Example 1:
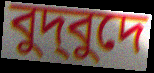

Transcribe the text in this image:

বুদ্‌বুদে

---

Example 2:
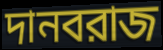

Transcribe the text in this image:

দানবরাজ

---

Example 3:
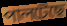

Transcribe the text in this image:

পালটেছে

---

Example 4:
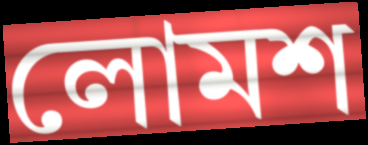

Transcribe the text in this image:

লোমশ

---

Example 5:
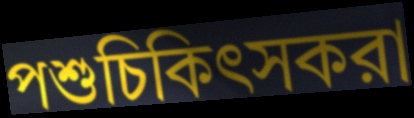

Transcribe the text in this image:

পশুচিকিৎসকরা